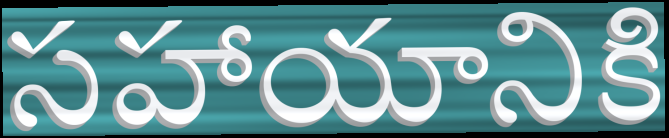
సహాయానికి